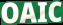
OAIC